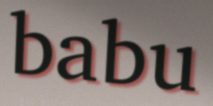
babu